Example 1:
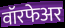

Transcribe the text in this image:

वॉरफेअर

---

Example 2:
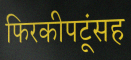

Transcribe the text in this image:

फिरकीपटूंसह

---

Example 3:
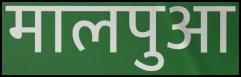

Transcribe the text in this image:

मालपुआ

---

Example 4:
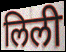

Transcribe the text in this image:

लिली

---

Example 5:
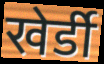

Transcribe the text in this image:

खेर्डी